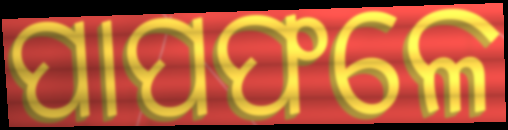
ପାପଫଳେ